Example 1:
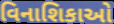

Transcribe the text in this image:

વિનાશિકાઓ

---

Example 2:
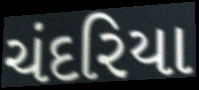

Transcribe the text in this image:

ચંદરિયા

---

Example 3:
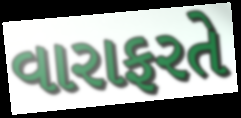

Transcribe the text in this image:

વારાફરતે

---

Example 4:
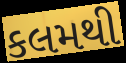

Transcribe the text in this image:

કલમથી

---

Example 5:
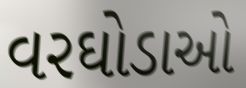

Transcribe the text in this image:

વરઘોડાઓ